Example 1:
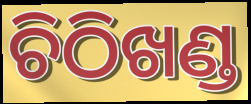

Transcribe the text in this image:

ଚିଠିଖଣ୍ଡ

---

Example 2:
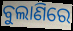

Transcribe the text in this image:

ବୁଲାଣିରେ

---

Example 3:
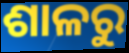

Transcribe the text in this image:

ଶାଳରୁ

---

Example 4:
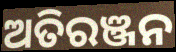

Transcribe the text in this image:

ଅତିରଞ୍ଜନ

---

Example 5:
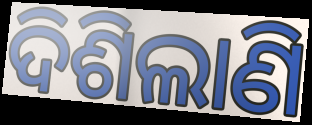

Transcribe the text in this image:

ଦିଶିଲାଣି